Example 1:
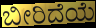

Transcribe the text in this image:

ಬೀರಿದೆಯೆ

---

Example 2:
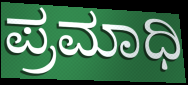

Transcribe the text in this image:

ಪ್ರಮಾಧಿ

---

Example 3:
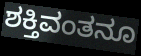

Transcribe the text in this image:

ಶಕ್ತಿವಂತನೂ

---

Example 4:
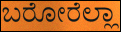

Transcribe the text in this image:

ಬರೋರೆಲ್ಲಾ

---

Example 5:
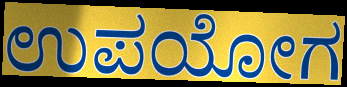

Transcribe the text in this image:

ಉಪಯೋಗ